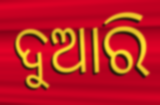
ଦୁଆରି